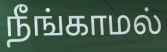
நீங்காமல்